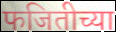
फजितीच्या